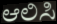
ಆಲಿಸಿ